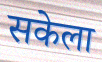
सकेला